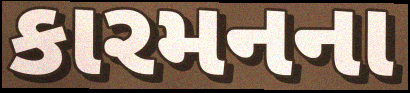
કારમનના